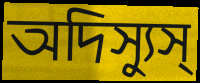
অদিস্যুস্